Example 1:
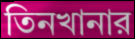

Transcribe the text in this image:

তিনখানার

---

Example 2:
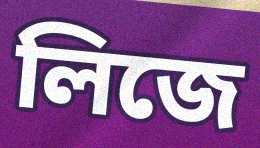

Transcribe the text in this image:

লিজে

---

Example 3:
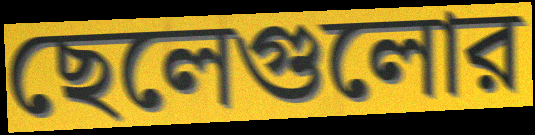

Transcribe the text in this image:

ছেলেগুলোর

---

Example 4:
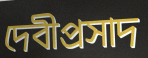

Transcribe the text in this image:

দেবীপ্রসাদ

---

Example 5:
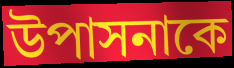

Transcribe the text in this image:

উপাসনাকে